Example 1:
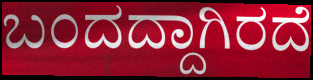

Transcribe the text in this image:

ಬಂದದ್ದಾಗಿರದೆ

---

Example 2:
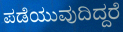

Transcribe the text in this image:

ಪಡೆಯುವುದಿದ್ದರೆ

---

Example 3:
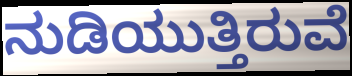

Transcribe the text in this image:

ನುಡಿಯುತ್ತಿರುವೆ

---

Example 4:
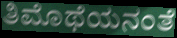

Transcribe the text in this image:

ತಿಮೊಥೆಯನಂತೆ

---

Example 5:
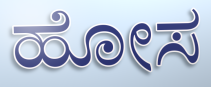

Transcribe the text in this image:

ಹೋಸ